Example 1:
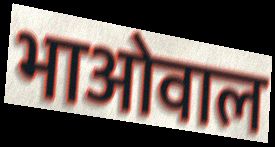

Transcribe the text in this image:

भाओवाल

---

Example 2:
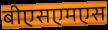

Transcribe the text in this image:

बीएसएमएस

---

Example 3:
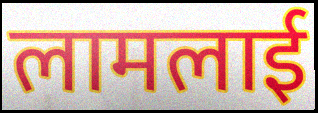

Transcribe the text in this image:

लामलाई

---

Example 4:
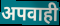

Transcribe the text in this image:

अपवाही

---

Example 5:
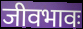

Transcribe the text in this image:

जीवभावः